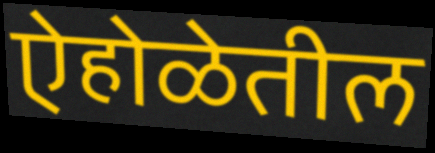
ऐहोळेतील